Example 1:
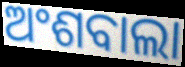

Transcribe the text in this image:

ଅଂଶବାଲା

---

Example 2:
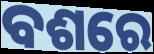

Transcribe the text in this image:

ବଶରେ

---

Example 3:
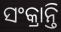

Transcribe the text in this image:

ସଂକ୍ରାନ୍ତି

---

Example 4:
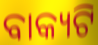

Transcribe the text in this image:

ବାକ୍ୟଟି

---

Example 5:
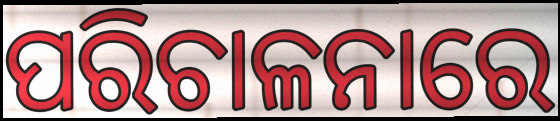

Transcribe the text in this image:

ପରିଚାଳନାରେ